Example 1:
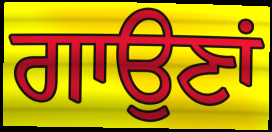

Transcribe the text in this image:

ਗਾਉਣਾਂ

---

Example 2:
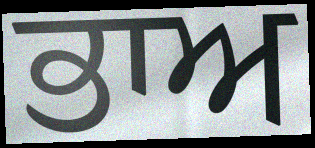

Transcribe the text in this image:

ਭਾਅ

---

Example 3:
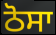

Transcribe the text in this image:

ਠੋਸਾ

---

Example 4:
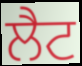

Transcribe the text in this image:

ਲੈਟ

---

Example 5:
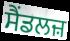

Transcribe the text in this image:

ਸੈਂਡਲਜ਼